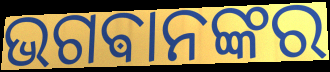
ଭଗଵାନଙ୍କର